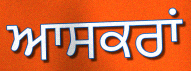
ਆਸਕਰਾਂ